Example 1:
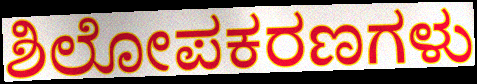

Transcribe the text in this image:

ಶಿಲೋಪಕರಣಗಳು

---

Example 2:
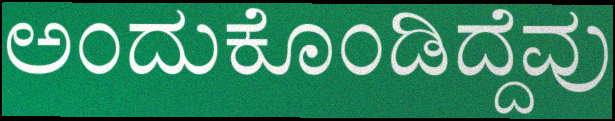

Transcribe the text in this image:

ಅಂದುಕೊಂಡಿದ್ದೆವು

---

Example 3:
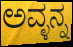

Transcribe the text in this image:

ಅವ್ಳನ್ನ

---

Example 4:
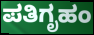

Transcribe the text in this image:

ಪತಿಗೃಹಂ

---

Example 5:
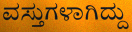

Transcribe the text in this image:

ವಸ್ತುಗಳಾಗಿದ್ದು